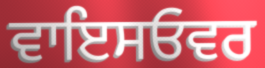
ਵਾਇਸਓਵਰ